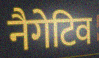
नैगेटिव